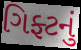
ગિફ્ટનું